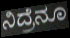
ನಿದ್ರೆನೂ